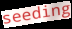
seeding